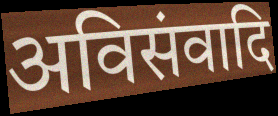
अविसंवादि